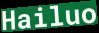
Hailuo